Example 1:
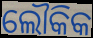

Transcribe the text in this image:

ଲୌକିକ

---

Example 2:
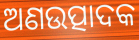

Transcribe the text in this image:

ଅଣଉତ୍ପାଦକ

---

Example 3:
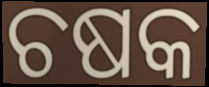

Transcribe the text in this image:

ଚଷକ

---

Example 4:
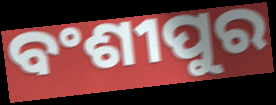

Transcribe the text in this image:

ବଂଶୀପୁର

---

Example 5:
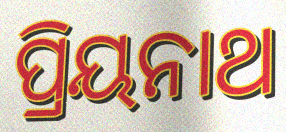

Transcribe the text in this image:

ପ୍ରିୟନାଥ